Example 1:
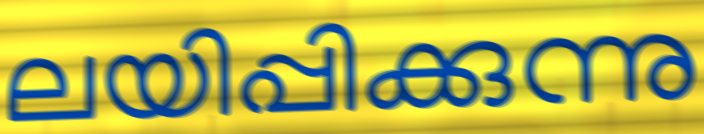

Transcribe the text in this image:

ലയിപ്പിക്കുന്നു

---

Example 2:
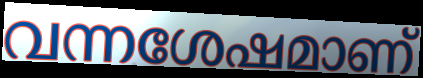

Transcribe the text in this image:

വന്നശേഷമാണ്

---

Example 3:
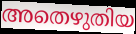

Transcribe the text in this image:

അതെഴുതിയ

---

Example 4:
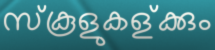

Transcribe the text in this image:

സ്കൂളുകള്ക്കും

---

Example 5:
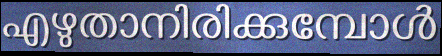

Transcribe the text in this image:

എഴുതാനിരിക്കുമ്പോൾ